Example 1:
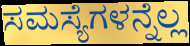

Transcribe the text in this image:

ಸಮಸ್ಯೆಗಳನ್ನೆಲ್ಲ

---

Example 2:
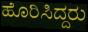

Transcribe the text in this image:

ಹೊರಿಸಿದ್ದರು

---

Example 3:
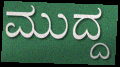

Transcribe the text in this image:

ಮುದ್ದ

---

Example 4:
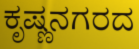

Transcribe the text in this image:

ಕೃಷ್ಣನಗರದ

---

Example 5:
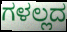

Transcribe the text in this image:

ಗಳಲ್ಲದ